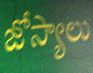
జోస్యాలు